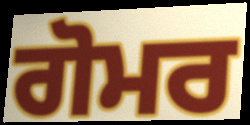
ਗੋਮਰ